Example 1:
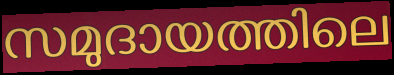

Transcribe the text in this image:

സമുദായത്തിലെ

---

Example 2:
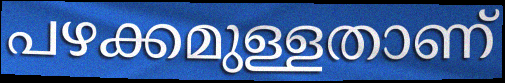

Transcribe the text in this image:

പഴക്കമുള്ളതാണ്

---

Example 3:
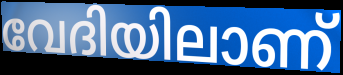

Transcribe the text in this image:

വേദിയിലാണ്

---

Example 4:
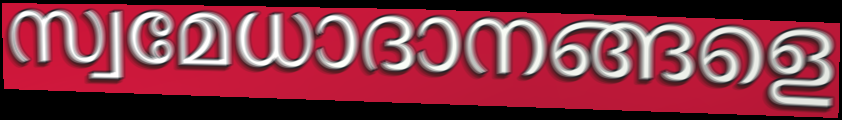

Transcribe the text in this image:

സ്വമേധാദാനങ്ങളെ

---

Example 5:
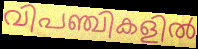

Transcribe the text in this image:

വിപഞ്ചികളിൽ